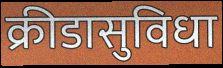
क्रीडासुविधा